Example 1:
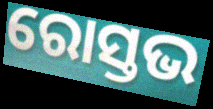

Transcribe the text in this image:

ରୋସ୍ତଭ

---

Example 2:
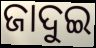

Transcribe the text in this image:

ଜାଦୁଇ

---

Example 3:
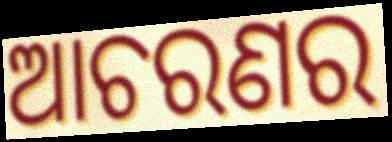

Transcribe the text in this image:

ଆଚରଣର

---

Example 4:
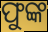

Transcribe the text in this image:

ଫୁଙ୍କ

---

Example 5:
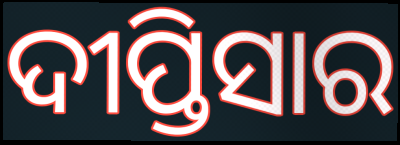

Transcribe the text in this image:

ଦୀପ୍ତିସାର